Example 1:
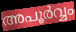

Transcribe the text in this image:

അപൂർവ്വം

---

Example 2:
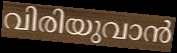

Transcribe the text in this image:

വിരിയുവാൻ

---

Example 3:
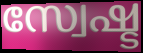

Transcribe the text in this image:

സ്വേഷ്ട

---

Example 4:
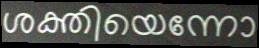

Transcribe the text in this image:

ശക്തിയെന്നോ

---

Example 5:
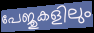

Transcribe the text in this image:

പേജുകളിലും